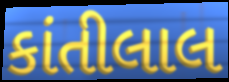
કાંતીલાલ